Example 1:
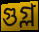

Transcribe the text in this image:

গুগ্ল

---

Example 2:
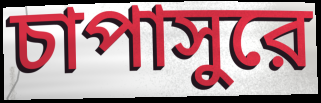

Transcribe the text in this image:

চাপাসুরে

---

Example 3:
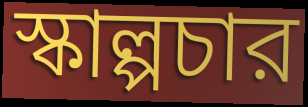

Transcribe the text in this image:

স্কাল্পচার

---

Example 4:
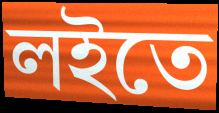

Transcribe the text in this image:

লইতে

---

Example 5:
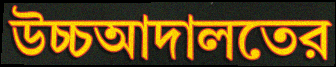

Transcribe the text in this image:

উচ্চআদালতের